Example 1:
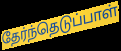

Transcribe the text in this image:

தேர்ந்தெடுப்பாள்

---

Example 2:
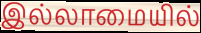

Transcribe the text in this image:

இல்லாமையில்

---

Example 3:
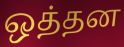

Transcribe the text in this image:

ஒத்தன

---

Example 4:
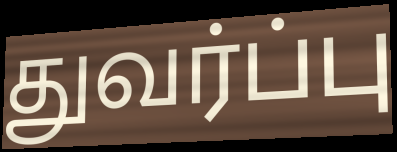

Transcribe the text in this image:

துவர்ப்பு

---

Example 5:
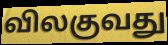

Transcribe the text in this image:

விலகுவது